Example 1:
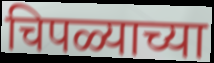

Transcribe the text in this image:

चिपळ्याच्या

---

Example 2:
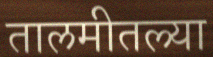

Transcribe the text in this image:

तालमीतल्या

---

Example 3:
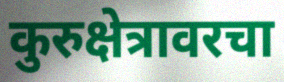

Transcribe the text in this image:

कुरुक्षेत्रावरचा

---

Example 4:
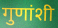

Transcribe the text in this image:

गुणांशी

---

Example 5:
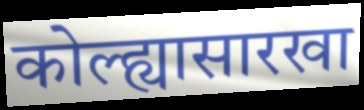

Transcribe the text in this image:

कोल्ह्यासारखा